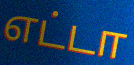
எட்டா